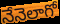
నేనెలాగో